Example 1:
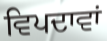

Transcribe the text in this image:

ਵਿਪਦਾਵਾਂ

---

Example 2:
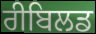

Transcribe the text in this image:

ਰੀਬਿਲਡ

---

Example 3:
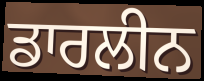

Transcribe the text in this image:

ਡਾਰਲੀਨ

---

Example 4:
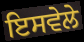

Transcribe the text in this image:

ਇਸਵੇਲੇ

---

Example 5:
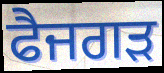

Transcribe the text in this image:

ਫੈਜਗੜ